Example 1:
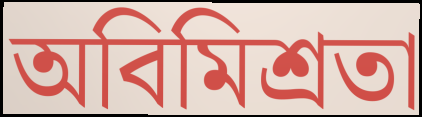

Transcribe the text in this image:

অবিমিশ্রতা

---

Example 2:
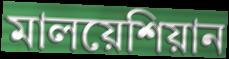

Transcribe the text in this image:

মালয়েশিয়ান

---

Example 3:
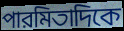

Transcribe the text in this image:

পারমিতাদিকে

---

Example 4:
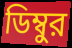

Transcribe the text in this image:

ডিম্বুর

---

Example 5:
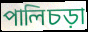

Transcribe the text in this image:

পালিচড়া